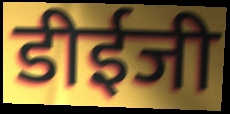
डीईजी